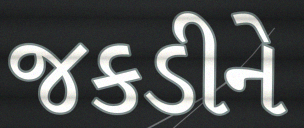
જકડીને